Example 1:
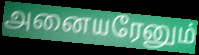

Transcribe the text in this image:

அனையரேனும்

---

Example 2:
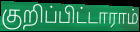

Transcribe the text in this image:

குறிப்பிட்டாராம்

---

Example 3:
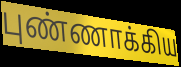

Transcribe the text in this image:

புண்ணாக்கிய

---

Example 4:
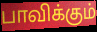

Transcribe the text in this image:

பாவிக்கும்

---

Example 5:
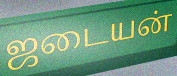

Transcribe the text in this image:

ஜடையன்